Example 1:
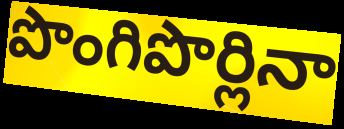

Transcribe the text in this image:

పొంగిపొర్లినా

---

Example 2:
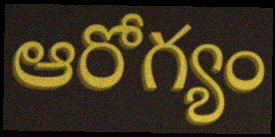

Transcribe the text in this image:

ఆరోగ్యం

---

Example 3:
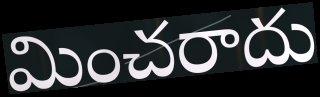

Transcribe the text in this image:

మించరాదు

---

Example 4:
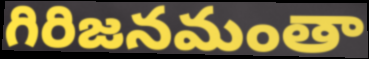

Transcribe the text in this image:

గిరిజనమంతా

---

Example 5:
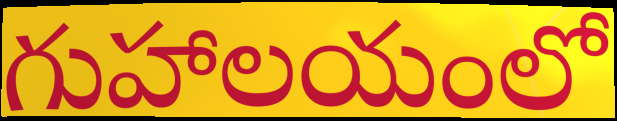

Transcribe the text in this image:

గుహాలయంలో